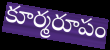
కూర్మరూపం